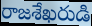
రాజశేఖరుడి